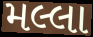
મલ્લા